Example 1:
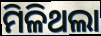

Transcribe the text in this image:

ମିଳିଥଲା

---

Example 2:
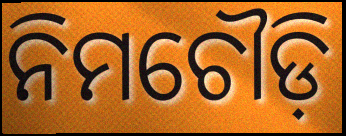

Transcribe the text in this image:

ନିମଚୌଡ଼ି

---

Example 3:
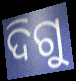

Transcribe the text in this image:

ଦିଗୁ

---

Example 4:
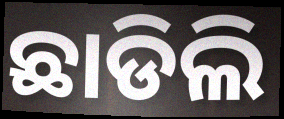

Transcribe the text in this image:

ଛାଡିଲି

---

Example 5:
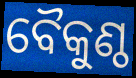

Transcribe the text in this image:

ବୈକୁଣ୍ଠ